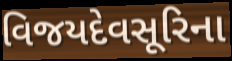
વિજયદેવસૂરિના